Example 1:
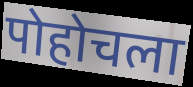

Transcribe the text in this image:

पोहोचला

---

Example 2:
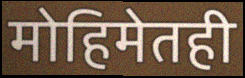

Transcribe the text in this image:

मोहिमेतही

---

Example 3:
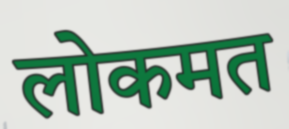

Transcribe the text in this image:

लोकमत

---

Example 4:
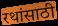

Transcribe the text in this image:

रथांसाठी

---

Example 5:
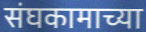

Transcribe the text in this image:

संघकामाच्या